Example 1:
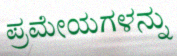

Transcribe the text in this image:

ಪ್ರಮೇಯಗಳನ್ನು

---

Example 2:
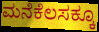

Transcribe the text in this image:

ಮನೆಕೆಲಸಕ್ಕೂ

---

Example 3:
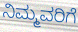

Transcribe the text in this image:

ನಿಮ್ಮವರಿಗೆ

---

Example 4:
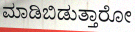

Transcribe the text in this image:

ಮಾಡಿಬಿಡುತ್ತಾರೋ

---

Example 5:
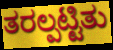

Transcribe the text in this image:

ತರಲ್ಪಟ್ಟಿತು